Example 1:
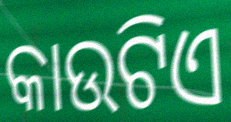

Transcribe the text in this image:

କାଉଟିଏ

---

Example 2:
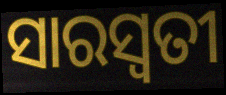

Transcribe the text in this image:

ସାରସ୍ୱତୀ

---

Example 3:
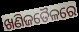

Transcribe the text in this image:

ଖଣିଜତୈଳରେ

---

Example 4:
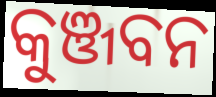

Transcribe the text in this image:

କୁଞ୍ଜବନ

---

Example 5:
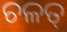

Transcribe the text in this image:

ଚଳତ୍